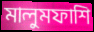
মালুমফাশি